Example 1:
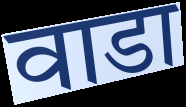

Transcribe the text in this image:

वाडा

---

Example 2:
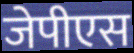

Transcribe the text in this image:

जेपीएस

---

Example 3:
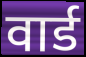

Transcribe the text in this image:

वार्ड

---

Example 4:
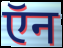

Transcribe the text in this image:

ऍन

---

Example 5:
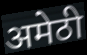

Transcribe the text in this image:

अमेठी